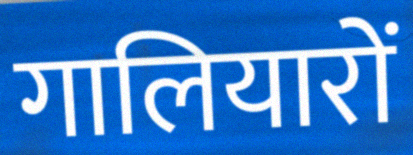
गालियारों